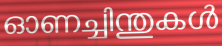
ഓണച്ചിന്തുകൾ